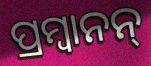
ପ୍ରମ୍ବାନନ୍